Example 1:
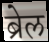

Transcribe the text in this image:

ब्रेल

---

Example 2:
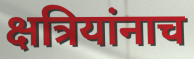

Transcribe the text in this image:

क्षत्रियांनाच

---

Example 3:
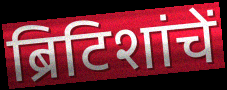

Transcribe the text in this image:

ब्रिटिशांचें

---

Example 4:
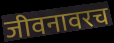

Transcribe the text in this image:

जीवनावरच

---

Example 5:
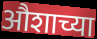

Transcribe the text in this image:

औशाच्या